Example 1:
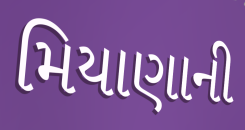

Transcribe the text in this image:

મિયાણાની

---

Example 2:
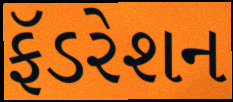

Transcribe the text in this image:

ફૅડરેશન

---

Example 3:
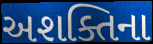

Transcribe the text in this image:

અશક્તિના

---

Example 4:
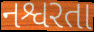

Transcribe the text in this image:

નશ્વરતા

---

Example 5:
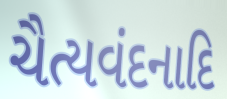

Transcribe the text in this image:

ચૈત્યવંદનાદિ